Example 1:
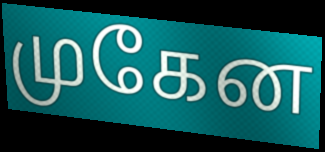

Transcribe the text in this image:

முகேன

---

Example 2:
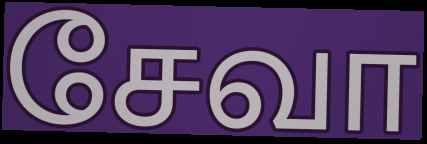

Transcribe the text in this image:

சேவா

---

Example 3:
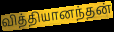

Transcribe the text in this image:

வித்தியானந்தன்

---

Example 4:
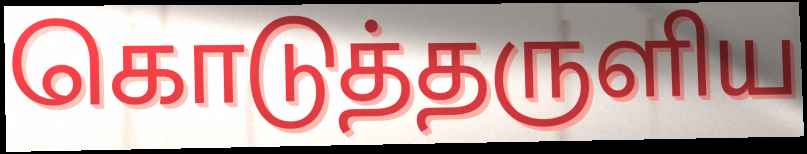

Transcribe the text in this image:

கொடுத்தருளிய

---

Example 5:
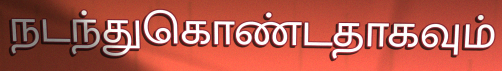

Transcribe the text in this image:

நடந்துகொண்டதாகவும்